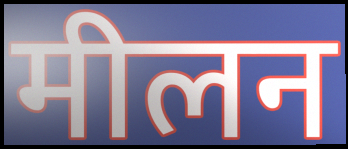
मीलन